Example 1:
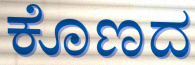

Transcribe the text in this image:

ಕೊಣದ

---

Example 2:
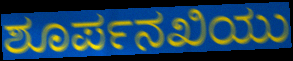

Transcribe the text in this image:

ಶೂರ್ಪನಖಿಯು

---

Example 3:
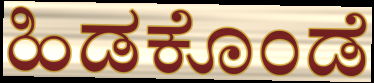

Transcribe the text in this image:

ಹಿಡಕೊಂಡೆ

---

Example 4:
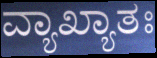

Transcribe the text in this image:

ವ್ಯಾಖ್ಯಾತಃ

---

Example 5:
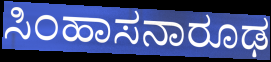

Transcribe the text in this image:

ಸಿಂಹಾಸನಾರೂಢ